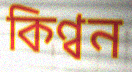
কিণ্বন